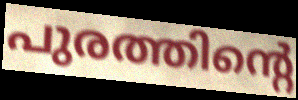
പുരത്തിന്റെ